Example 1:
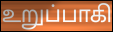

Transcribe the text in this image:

உறுப்பாகி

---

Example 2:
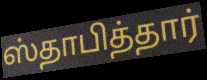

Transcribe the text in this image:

ஸ்தாபித்தார்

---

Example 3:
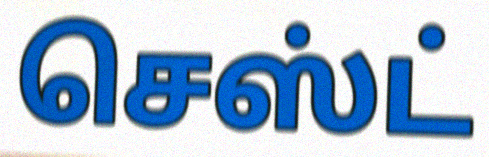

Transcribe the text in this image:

செஸ்ட்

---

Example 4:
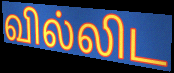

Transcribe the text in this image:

வில்லிட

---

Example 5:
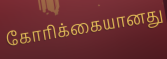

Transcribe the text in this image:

கோரிக்கையானது